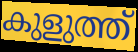
കുളുത്ത്